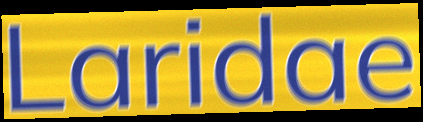
Laridae